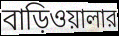
বাড়িওয়ালার